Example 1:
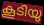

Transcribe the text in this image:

കൂടിയു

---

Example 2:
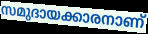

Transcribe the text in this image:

സമുദായക്കാരനാണ്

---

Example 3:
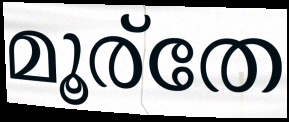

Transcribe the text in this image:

മൂര്തേ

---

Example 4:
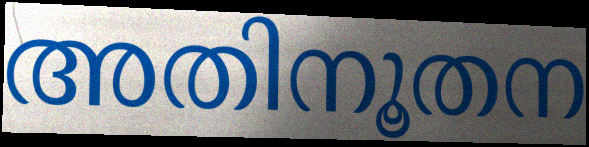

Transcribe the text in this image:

അതിനൂതന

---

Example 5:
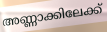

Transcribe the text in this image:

അണ്ണാക്കിലേക്ക്